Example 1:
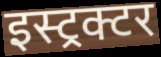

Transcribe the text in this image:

इस्ट्रक्टर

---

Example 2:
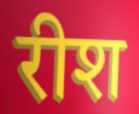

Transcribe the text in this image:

रीश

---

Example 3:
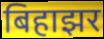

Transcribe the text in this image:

बिहाझर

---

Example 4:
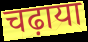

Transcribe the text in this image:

चढ़ाया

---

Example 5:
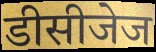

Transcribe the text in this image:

डीसीजेज